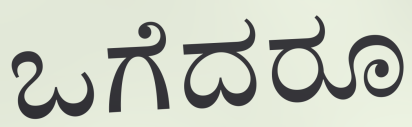
ಒಗೆದರೂ